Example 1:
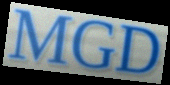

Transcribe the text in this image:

MGD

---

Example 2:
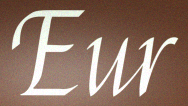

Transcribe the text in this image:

Eur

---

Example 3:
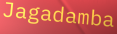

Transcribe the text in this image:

Jagadamba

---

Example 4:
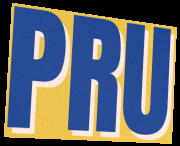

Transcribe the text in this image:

PRU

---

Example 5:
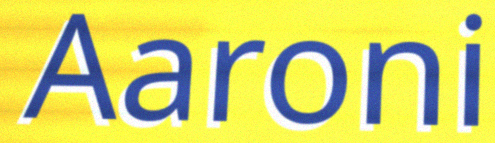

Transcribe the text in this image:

Aaroni